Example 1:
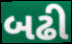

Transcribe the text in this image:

બઢી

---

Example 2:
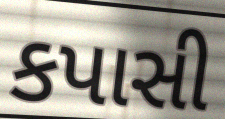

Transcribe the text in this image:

કપાસી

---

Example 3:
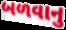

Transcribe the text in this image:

બળવાનુ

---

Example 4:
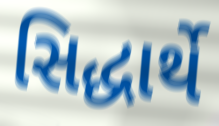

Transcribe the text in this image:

સિદ્ધાર્થે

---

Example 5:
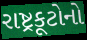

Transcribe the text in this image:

રાષ્ટ્રકૂટોનો